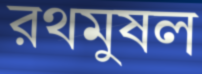
রথমুষল